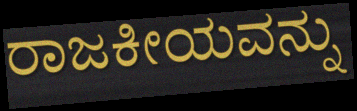
ರಾಜಕೀಯವನ್ನು